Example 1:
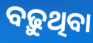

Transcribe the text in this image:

ବଢ଼ୁଥିବା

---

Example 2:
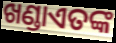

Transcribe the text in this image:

ଖଣ୍ଡାଏତଙ୍କ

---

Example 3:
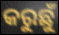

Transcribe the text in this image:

କରୁଛୁଁ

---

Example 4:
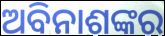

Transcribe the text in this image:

ଅବିନାଶଙ୍କର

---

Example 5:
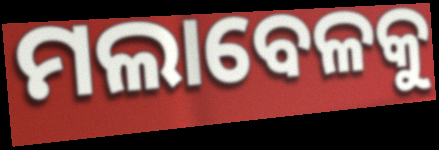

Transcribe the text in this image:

ମଲାବେଳକୁ